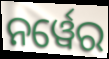
ନର୍ୱେର